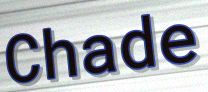
Chade